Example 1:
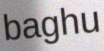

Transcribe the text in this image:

baghu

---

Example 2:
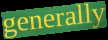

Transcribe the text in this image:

generally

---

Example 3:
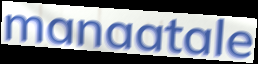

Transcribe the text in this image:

manaatale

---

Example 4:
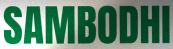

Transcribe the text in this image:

SAMBODHI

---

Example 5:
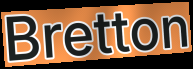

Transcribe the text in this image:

Bretton